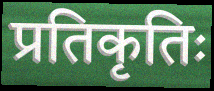
प्रतिकृतिः